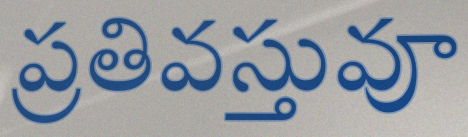
ప్రతివస్తువూ